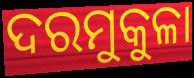
ଦରମୁକୁଳା